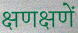
क्षणक्षणें